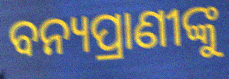
ବନ୍ୟପ୍ରାଣୀଙ୍କୁ